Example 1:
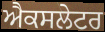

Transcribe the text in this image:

ਐਕਸਲੇਟਰ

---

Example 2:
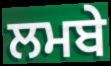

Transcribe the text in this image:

ਲਮਬੇ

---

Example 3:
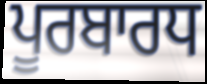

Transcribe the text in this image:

ਪੂਰਬਾਰਧ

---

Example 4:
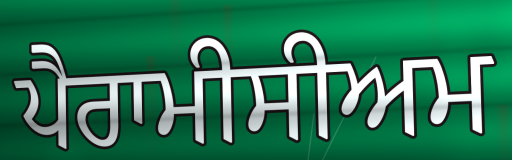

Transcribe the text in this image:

ਪੈਰਾਮੀਸੀਅਮ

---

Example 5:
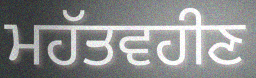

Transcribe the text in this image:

ਮਹੱਤਵਹੀਣ